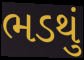
ભડથું